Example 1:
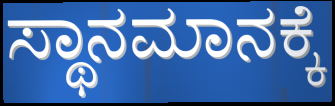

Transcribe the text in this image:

ಸ್ಥಾನಮಾನಕ್ಕೆ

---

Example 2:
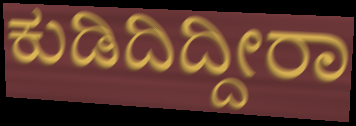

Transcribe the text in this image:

ಕುಡಿದಿದ್ದೀರಾ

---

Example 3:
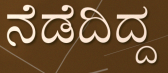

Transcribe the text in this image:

ನೆಡೆದಿದ್ದ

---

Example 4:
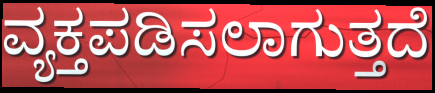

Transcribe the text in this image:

ವ್ಯಕ್ತಪಡಿಸಲಾಗುತ್ತದೆ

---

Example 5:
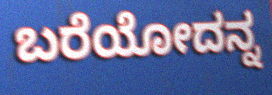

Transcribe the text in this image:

ಬರೆಯೋದನ್ನ